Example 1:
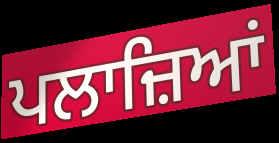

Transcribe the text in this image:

ਪਲਾਜ਼ਿਆਂ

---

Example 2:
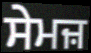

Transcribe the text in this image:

ਸੇਮਜ਼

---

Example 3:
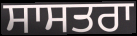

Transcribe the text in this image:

ਸਾਸਤਰਾ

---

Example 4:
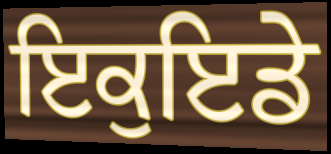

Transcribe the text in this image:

ਇਕੁਇਡੇ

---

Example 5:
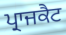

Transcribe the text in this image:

ਪ੍ਰਾਜਕੈਟ